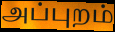
அப்புறம்